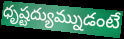
ధృష్టద్యుమ్నుడంటే